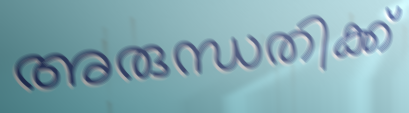
അരുന്ധതിക്ക്